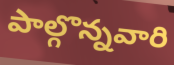
పాల్గొన్నవారి